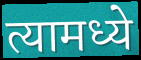
त्यामध्ये